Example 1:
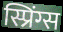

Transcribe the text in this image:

स्प्रिंग्स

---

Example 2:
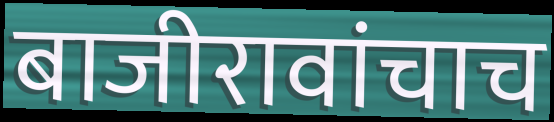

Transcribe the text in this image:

बाजीरावांचाच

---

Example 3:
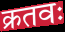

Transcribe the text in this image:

क्रतवः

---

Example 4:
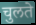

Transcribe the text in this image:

चुलते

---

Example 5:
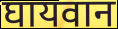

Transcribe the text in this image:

घायवान